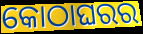
କୋଠାଘରର